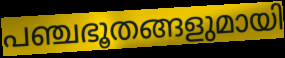
പഞ്ചഭൂതങ്ങളുമായി